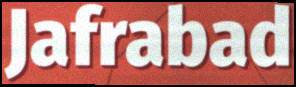
Jafrabad